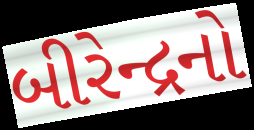
બીરેન્દ્રનો